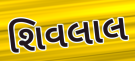
શિવલાલ